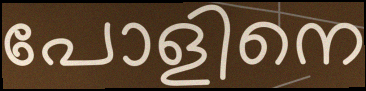
പോളിനെ